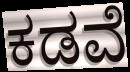
ಕಡವೆ